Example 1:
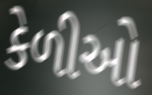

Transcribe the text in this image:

કેળીઓ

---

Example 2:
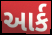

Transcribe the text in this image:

આર્ક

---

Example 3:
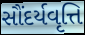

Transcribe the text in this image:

સૌંદર્યવૃત્તિ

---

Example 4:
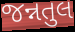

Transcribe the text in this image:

જન્નતુલ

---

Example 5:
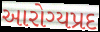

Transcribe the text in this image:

આરોગ્યપ્રદ